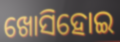
ଖୋସିହୋଇ